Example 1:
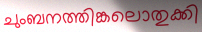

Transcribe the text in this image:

ചുംബനത്തിങ്കലൊതുക്കി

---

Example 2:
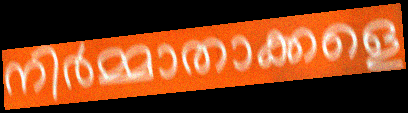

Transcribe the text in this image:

നിർമ്മാതാക്കളെ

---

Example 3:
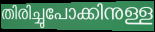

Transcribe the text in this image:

തിരിച്ചുപോക്കിനുള്ള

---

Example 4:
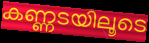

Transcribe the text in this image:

കണ്ണടയിലൂടെ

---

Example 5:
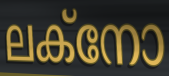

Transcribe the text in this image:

ലക്നോ